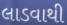
લાડવાથી